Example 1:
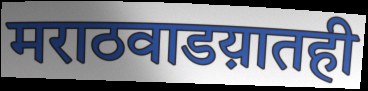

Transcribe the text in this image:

मराठवाडय़ातही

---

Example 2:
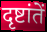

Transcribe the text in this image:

दृष्टांतें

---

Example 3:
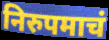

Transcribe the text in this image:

निरुपमाचं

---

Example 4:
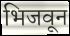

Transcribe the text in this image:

भिजवून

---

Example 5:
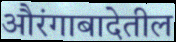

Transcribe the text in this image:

औरंगाबादेतील